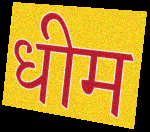
धीम